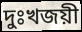
দুঃখজয়ী